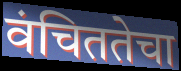
वंचिततेचा